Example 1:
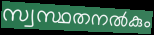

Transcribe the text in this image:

സ്വസ്ഥതനൽകും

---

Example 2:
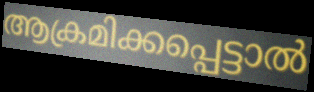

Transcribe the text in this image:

ആക്രമിക്കപ്പെട്ടാൽ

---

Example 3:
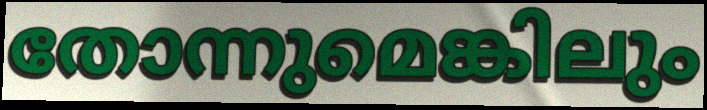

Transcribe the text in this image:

തോന്നുമെങ്കിലും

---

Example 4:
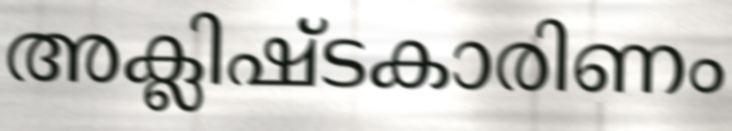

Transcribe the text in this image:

അക്ലിഷ്ടകാരിണം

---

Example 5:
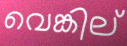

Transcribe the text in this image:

വെങ്കില്